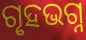
ଗୃହଭଗ୍ନ